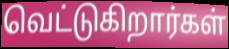
வெட்டுகிறார்கள்